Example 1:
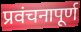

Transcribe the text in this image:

प्रवंचनापूर्ण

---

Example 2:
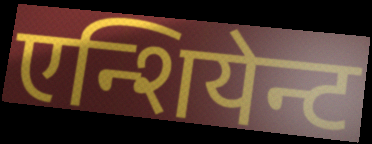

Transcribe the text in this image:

एन्शियेन्ट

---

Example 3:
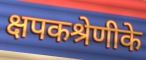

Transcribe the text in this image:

क्षपकश्रेणीके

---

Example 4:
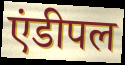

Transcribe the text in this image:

एंडीपल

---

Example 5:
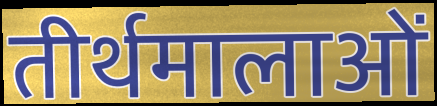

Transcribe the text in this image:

तीर्थमालाओं